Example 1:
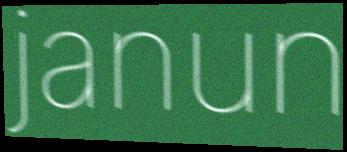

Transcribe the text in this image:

janun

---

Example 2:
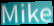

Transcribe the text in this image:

Mike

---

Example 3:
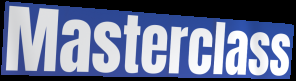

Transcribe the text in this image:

Masterclass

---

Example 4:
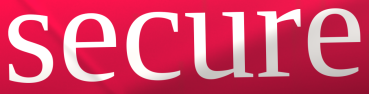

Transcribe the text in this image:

secure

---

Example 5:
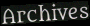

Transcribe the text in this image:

Archives